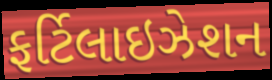
ફર્ટિલાઇઝેશન